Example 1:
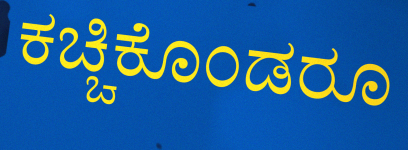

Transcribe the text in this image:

ಕಚ್ಚಿಕೊಂಡರೂ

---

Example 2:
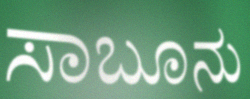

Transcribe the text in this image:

ಸಾಬೂನು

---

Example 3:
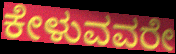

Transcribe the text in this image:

ಕೇಳುವವರೇ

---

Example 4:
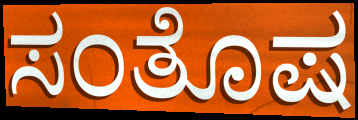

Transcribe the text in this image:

ಸಂತೊಷ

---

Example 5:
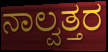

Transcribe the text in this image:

ನಾಲ್ವತ್ತರ